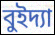
বুইদ্যা